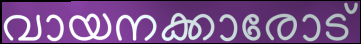
വായനക്കാരോട്